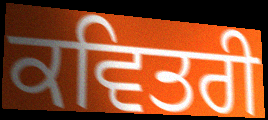
ਕਵਿਤਰੀ